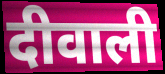
दीवाली